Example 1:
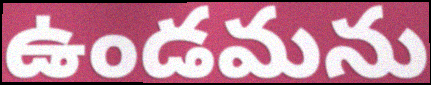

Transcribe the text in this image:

ఉండమను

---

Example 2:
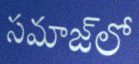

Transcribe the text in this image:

సమాజ్‌లో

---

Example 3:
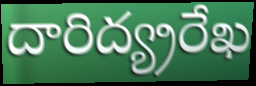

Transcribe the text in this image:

దారిద్య్రరేఖ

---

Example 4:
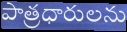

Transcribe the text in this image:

పాత్రధారులను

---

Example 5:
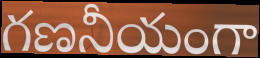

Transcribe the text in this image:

గణనీయంగా